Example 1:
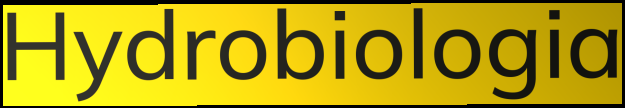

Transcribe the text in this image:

Hydrobiologia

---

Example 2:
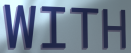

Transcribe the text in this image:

WITH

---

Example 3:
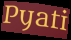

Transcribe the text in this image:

Pyati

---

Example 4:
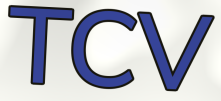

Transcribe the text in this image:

TCV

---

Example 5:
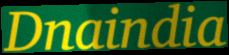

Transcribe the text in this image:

Dnaindia